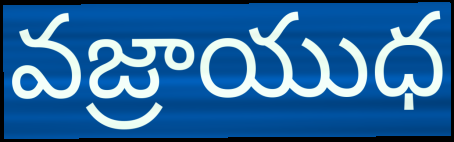
వజ్రాయుధ